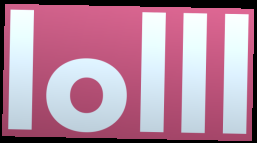
lolll